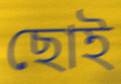
ছোই